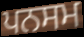
ਪਨਸਮ